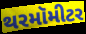
થરમૉમીટર